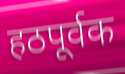
हठपूर्वक